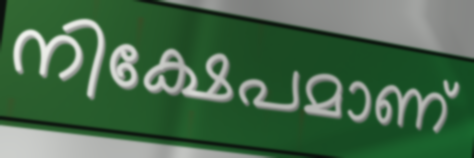
നിക്ഷേപമാണ്